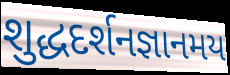
શુદ્ધદર્શનજ્ઞાનમય